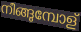
നീങ്ങുമ്പോള്